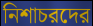
নিশাচরদের